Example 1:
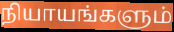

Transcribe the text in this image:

நியாயங்களும்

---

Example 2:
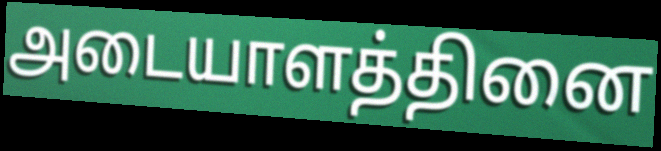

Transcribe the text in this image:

அடையாளத்தினை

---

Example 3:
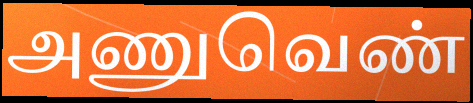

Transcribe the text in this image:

அணுவெண்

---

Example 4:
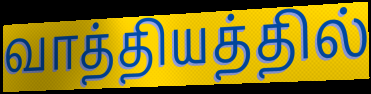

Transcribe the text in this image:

வாத்தியத்தில்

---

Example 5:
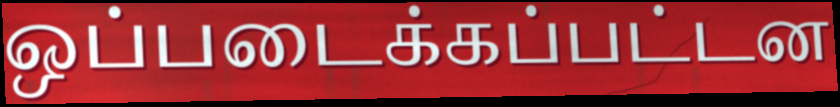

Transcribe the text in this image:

ஒப்படைக்கப்பட்டன